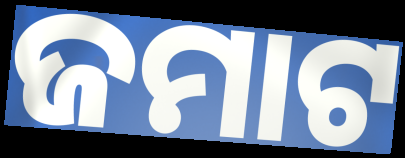
ଜମାଟ